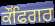
ਕੌਂਫਿਗਰ